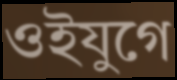
ওইযুগে